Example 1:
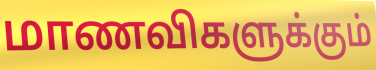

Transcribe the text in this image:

மாணவிகளுக்கும்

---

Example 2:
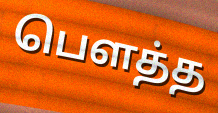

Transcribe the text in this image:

பௌத்த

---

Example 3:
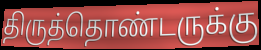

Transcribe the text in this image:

திருத்தொண்டருக்கு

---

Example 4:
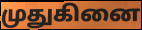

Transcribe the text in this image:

முதுகினை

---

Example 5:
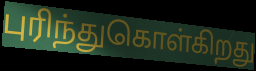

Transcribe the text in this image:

புரிந்துகொள்கிறது